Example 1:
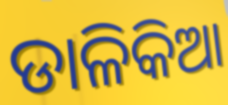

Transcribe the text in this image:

ଡାଳିକିଆ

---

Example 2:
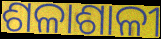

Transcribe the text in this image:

ଶଳାଶାଳୀ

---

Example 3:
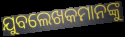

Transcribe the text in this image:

ଯୁବଲେଖକମାନଙ୍କୁ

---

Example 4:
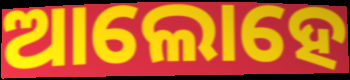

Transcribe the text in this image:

ଆଲୋହେ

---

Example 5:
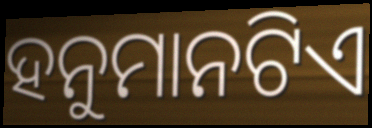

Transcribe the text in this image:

ହନୁମାନଟିଏ